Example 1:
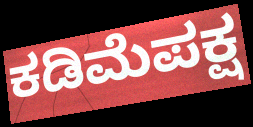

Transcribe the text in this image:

ಕಡಿಮೆಪಕ್ಷ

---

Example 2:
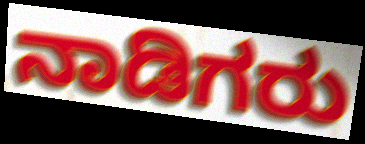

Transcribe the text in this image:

ನಾಡಿಗರು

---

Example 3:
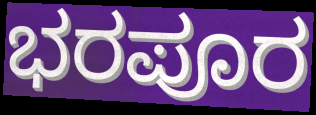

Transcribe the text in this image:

ಭರಪೂರ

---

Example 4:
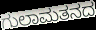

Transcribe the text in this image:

ಗುಲಾಮತನದ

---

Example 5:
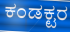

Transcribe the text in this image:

ಕಂಡಕ್ಟರ